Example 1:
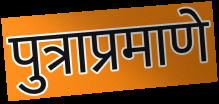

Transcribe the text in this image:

पुत्राप्रमाणे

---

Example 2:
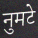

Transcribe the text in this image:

नुमटे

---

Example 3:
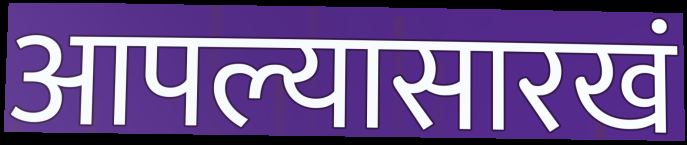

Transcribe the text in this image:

आपल्यासारखं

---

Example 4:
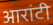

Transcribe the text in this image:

आरांटी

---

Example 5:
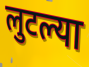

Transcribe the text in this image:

लुटल्या